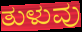
ತುಳುವು